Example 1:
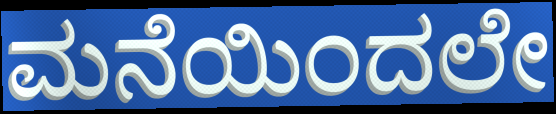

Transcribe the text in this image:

ಮನೆಯಿಂದಲೇ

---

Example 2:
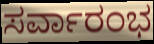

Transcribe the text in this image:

ಸರ್ವಾರಂಭ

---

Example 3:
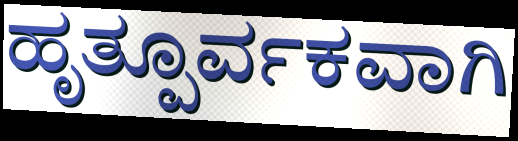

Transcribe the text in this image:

ಹೃತ್ಪೂರ್ವಕವಾಗಿ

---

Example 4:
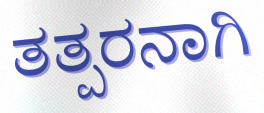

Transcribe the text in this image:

ತತ್ಪರನಾಗಿ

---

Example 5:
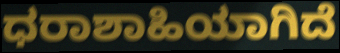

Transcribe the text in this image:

ಧರಾಶಾಹಿಯಾಗಿದೆ